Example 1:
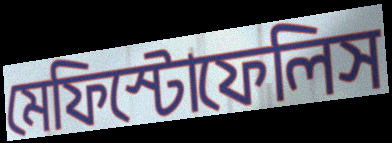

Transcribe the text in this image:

মেফিস্টোফেলিস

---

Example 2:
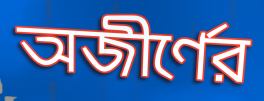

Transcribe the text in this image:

অজীর্ণের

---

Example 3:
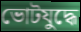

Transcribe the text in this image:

ভোটযুদ্ধে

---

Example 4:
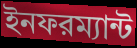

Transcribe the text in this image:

ইনফরম্যান্ট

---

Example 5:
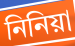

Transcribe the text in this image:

নিনিয়া